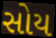
સોય